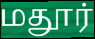
மதூர்